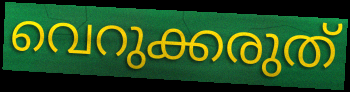
വെറുക്കരുത്